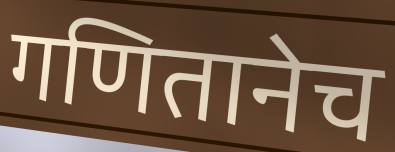
गणितानेच